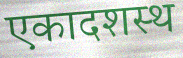
एकादशस्थ